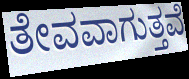
ತೇವವಾಗುತ್ತವೆ